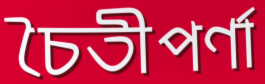
চৈতীপর্ণা